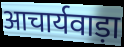
आचार्यवाड़ा